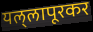
यल्लापूरकर